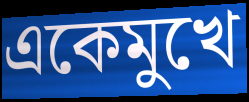
একেমুখে